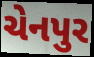
ચેનપુર